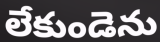
లేకుండెను